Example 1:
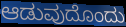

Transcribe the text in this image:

ಆಡುವುದೊಂದು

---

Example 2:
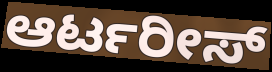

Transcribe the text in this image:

ಆರ್ಟರೀಸ್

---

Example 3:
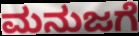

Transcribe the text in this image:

ಮನುಜಗೆ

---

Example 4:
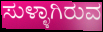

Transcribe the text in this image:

ಸುಳ್ಳಾಗಿರುವ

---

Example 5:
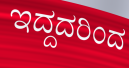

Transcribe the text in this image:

ಇದ್ದದರಿಂದ